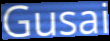
Gusai